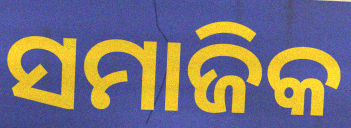
ସମାଜିକ